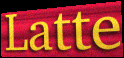
Latte